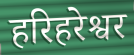
हरिहरेश्वर